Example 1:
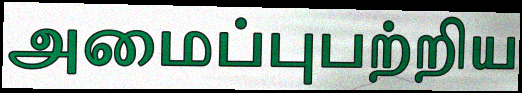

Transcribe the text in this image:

அமைப்புபற்றிய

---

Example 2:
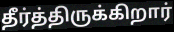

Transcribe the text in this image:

தீர்த்திருக்கிறார்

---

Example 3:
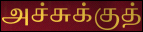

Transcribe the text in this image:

அச்சுக்குத்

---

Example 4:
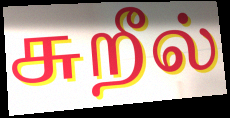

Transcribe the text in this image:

சுறீல்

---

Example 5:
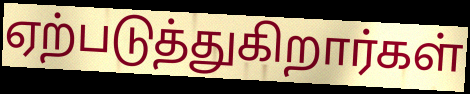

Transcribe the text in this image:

ஏற்படுத்துகிறார்கள்